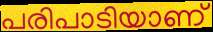
പരിപാടിയാണ്